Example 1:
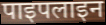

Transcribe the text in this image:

पाइपलाइन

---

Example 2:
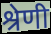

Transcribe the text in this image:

श्रेणी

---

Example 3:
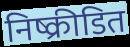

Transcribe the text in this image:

निष्क्रीडित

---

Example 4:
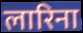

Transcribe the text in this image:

लारिना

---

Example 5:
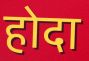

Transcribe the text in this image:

होदा